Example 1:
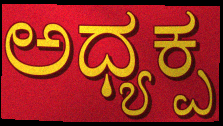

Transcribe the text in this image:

ಅಧ್ಯಕ್ಪ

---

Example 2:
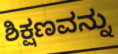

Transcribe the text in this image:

ಶಿಕ್ಷಣವನ್ನು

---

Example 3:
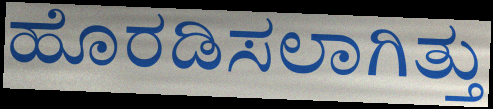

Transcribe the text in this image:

ಹೊರಡಿಸಲಾಗಿತ್ತು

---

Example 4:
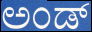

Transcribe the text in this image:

ಅಂಡ್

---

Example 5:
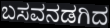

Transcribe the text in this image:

ಬಸವನಡಗಿದ